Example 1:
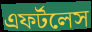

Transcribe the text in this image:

এফর্টলেস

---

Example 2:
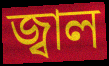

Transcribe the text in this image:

জ্বাল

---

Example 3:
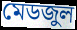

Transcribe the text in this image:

মেডজুল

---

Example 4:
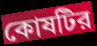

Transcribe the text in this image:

কোষটির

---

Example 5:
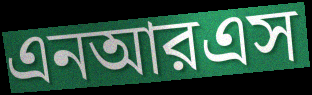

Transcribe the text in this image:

এনআরএস